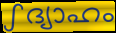
ഽദ്യാഹം